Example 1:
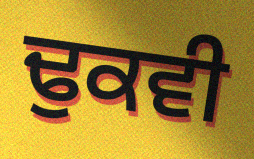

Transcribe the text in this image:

ਢੁਕਵੀ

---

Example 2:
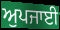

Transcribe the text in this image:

ਅੁਪਜਾਈ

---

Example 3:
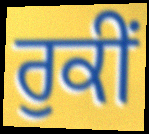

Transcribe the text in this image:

ਰੁਕੀਂ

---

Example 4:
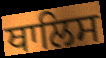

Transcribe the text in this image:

ਥਾਲਿਸ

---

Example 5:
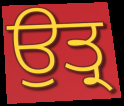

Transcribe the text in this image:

ਉਤ੍ਰ